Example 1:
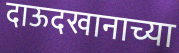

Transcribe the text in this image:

दाऊदखानाच्या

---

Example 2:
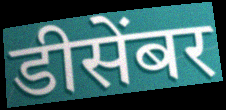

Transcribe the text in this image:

डीसेंबर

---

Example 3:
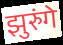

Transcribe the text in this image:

झुरुंगे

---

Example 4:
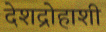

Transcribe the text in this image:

देशद्रोहाशी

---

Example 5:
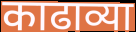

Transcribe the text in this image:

काढाव्या